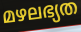
മഴലഭ്യത